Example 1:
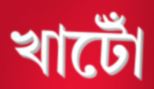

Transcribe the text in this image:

খাটোঁ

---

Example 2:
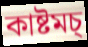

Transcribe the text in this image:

কাষ্টমচ্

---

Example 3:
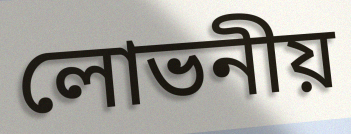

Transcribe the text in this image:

লোভনীয়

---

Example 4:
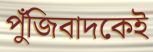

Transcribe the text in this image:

পুঁজিবাদকেই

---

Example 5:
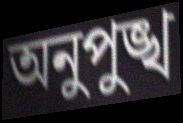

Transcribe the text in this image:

অনুপুঙ্খ